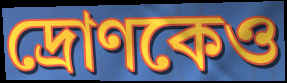
দ্রোণকেও